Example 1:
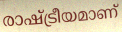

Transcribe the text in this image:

രാഷ്ട്രീയമാണ്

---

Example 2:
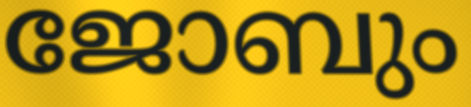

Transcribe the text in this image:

ജോബും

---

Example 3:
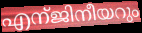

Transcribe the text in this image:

എന്ജിനീയറും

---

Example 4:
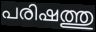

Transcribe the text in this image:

പരിഷത്തു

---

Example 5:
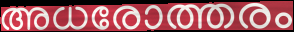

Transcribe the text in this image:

അധരോത്തരം